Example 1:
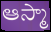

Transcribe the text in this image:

ఆస్మా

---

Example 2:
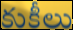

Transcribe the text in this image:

కుకీలు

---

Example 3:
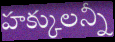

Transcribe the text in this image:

హక్కులన్నీ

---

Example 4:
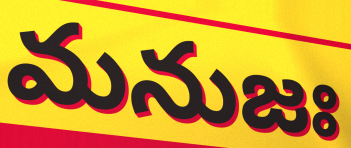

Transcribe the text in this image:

మనుజః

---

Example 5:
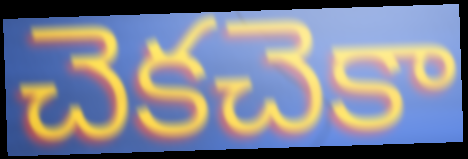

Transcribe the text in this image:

చెకచెకా